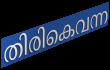
തിരികെവന്ന